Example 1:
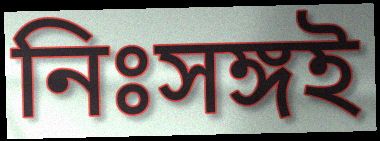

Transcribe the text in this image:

নিঃসঙ্গই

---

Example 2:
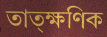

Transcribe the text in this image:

তাত্ক্ষণিক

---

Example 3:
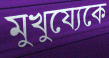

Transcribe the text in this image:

মুখুয্যেকে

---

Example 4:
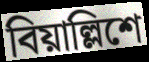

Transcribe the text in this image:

বিয়াল্লিশে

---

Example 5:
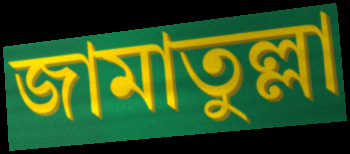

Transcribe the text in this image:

জামাতুল্লা